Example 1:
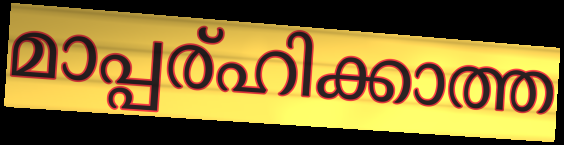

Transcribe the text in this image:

മാപ്പര്ഹിക്കാത്ത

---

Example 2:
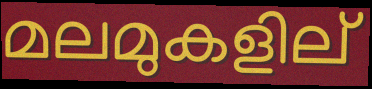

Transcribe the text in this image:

മലമുകളില്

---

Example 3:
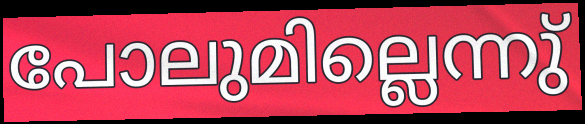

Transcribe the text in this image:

പോലുമില്ലെന്നു്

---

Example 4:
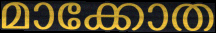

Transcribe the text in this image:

മാക്കോത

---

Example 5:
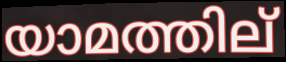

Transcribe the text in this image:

യാമത്തില്